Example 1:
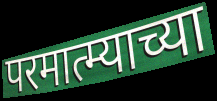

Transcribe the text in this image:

परमात्म्याच्या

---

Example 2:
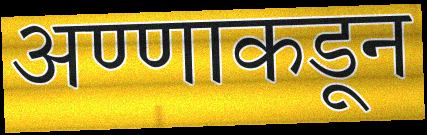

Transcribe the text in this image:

अण्णाकडून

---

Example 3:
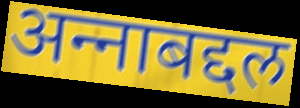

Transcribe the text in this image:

अन्‍नाबद्दल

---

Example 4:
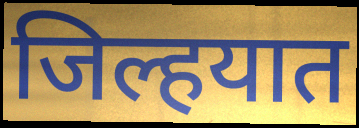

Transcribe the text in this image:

जिल्हयात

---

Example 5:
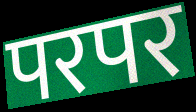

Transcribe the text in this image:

परपर